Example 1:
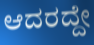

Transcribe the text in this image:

ಆದರದ್ದೇ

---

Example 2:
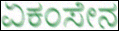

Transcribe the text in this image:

ಏಕಂಸೇನ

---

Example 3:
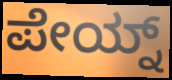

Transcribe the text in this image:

ಪೇಯ್ನ್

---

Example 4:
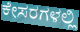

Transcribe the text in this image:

ಕೇಸರಗಳಲ್ಲಿ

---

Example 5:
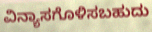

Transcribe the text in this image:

ವಿನ್ಯಾಸಗೊಳಿಸಬಹುದು